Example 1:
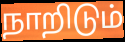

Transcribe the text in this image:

நாறிடும்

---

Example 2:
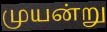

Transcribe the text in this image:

முயன்று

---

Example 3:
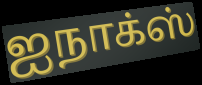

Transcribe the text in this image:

ஐநாக்ஸ்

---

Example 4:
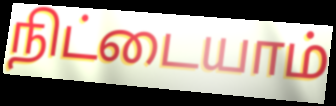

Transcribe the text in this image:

நிட்டையாம்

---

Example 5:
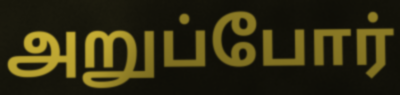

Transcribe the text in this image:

அறுப்போர்